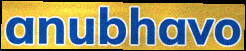
anubhavo